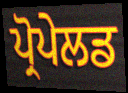
ਪ੍ਰੋਪੇਲਡ